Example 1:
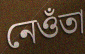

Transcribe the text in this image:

নেওঁতা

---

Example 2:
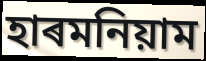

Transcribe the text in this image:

হাৰমনিয়াম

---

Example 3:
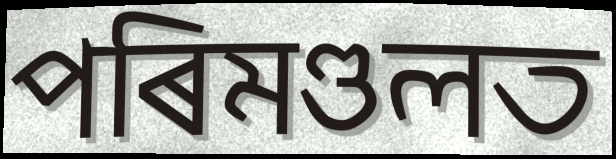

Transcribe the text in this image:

পৰিমণ্ডলত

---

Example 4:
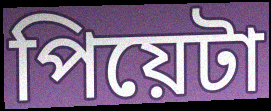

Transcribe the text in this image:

পিয়েটা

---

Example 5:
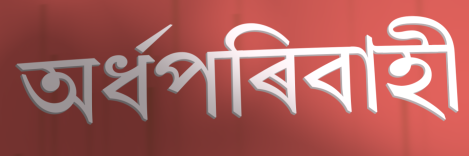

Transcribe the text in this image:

অৰ্ধপৰিবাহী